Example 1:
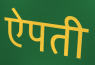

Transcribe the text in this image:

ऐपती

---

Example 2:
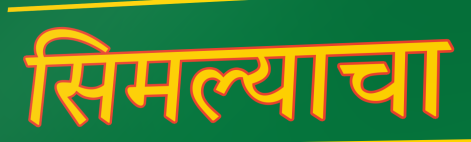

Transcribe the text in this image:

सिमल्याचा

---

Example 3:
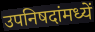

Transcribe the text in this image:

उपनिषदांमध्यें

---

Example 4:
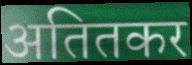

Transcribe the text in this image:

अतितकर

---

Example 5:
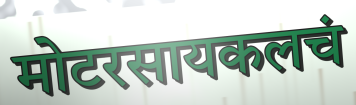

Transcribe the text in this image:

मोटरसायकलचं